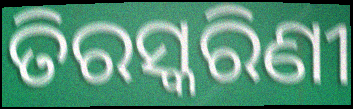
ତିରସ୍କରିଣୀ